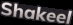
Shakeel